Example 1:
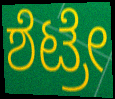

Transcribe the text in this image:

ಶೆಟ್ರೇ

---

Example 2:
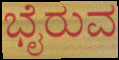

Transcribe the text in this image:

ಭೈರುವ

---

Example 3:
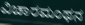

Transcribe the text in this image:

ವಿಚಾರಮಂಥನ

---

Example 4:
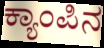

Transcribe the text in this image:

ಕ್ಯಾಂಪಿನ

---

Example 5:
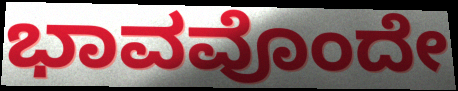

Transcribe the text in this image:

ಭಾವವೊಂದೇ